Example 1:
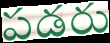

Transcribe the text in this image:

పడరు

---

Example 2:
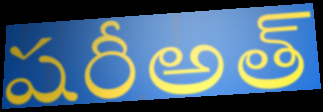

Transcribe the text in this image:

షరీఅత్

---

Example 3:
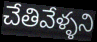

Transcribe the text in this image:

చేతివేళ్ళని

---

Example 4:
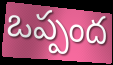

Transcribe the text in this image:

ఒప్పంద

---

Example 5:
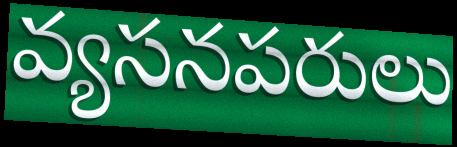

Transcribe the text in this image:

వ్యసనపరులు